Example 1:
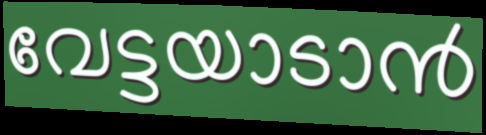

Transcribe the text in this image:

വേട്ടയാടാൻ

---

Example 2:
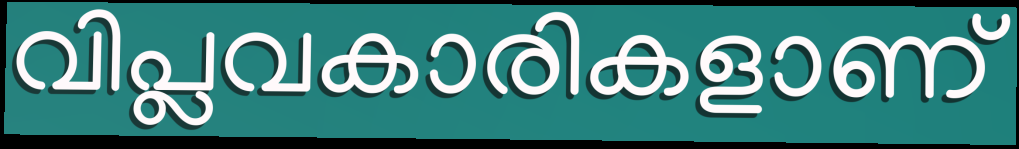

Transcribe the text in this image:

വിപ്ലവകാരികളാണ്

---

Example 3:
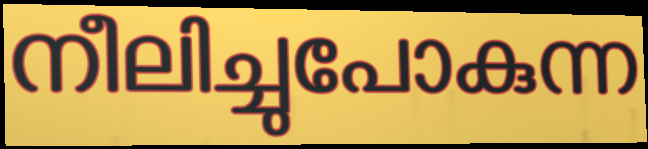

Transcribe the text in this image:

നീലിച്ചുപോകുന്ന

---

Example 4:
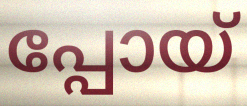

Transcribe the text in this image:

പ്പോയ്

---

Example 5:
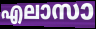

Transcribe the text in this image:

എലാസാ